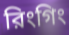
রিংগিং